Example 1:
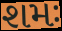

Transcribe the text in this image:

શમઃ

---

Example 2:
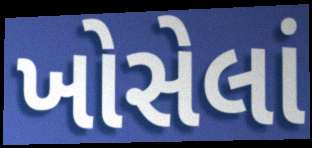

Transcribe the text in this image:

ખોસેલાં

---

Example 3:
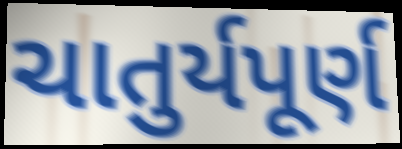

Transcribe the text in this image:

ચાતુર્યપૂર્ણ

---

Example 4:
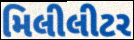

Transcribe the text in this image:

મિલીલીટર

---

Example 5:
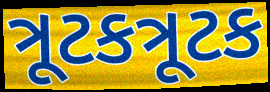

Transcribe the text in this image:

ત્રૂટકત્રૂટક